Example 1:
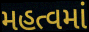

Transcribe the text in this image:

મહત્વમાં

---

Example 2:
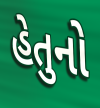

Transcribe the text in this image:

હેતુનો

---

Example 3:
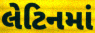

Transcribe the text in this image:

લેટિનમાં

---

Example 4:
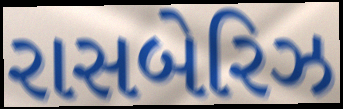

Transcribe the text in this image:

રાસબેરિઝ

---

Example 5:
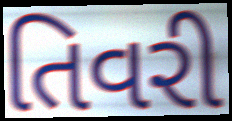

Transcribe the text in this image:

તિવરી